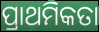
ପ୍ରାଥମିକତା